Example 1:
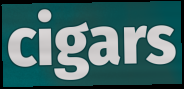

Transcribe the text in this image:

cigars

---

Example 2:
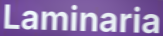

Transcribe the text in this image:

Laminaria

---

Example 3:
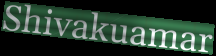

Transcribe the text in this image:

Shivakuamar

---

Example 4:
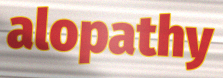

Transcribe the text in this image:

alopathy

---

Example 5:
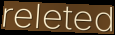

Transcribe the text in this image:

releted